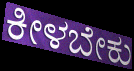
ಕೀಳಬೇಕು